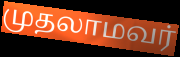
முதலாமவர்